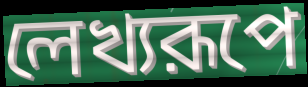
লেখ্যরূপে